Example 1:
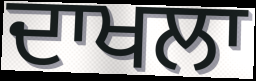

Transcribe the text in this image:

ਦਾਖਲਾ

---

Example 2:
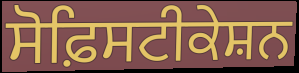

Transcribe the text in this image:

ਸੋਫ਼ਿਸਟੀਕੇਸ਼ਨ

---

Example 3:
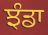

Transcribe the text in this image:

ਝੰਡਾ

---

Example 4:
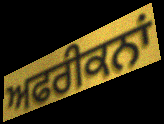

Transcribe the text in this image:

ਅਫਰੀਕਨਾਂ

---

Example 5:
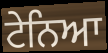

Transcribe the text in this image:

ਟੇਨਿਆ